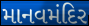
માનવમંદિર